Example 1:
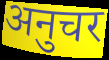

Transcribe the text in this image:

अनुचर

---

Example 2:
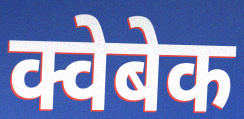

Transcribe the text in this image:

क्वेबेक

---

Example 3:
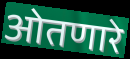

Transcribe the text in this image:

ओतणारे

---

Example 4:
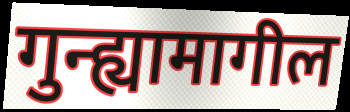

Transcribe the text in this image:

गुन्ह्यामागील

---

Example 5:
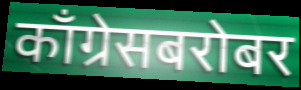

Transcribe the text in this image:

काँग्रेसबरोबर